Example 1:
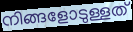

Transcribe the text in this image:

നിങ്ങളോടുള്ളത്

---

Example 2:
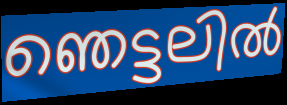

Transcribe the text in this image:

ഞെട്ടലിൽ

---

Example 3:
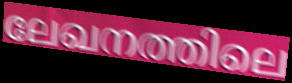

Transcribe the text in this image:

ലേഖനത്തിലെ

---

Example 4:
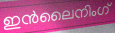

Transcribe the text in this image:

ഇൻലൈനിംഗ്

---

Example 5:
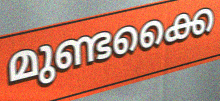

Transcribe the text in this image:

മുണ്ടക്കൈ